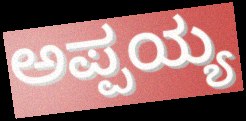
ಅಪ್ಪಯ್ಯ